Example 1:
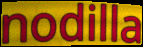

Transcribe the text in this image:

nodilla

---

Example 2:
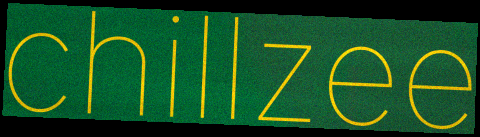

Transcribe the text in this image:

chillzee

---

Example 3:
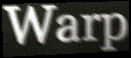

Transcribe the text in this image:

Warp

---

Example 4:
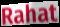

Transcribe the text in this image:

Rahat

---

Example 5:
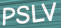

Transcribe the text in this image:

PSLV